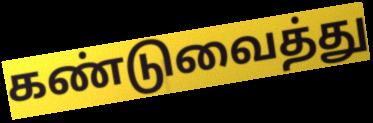
கண்டுவைத்து